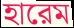
হারেম